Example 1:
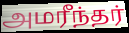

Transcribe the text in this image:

அமரீந்தர்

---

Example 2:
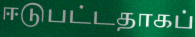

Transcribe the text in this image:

ஈடுபட்டதாகப்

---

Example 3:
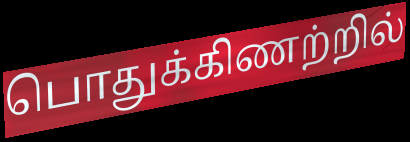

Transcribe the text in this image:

பொதுக்கிணற்றில்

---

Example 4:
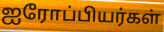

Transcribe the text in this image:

ஐரோப்பியர்கள்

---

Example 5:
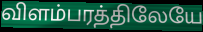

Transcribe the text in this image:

விளம்பரத்திலேயே